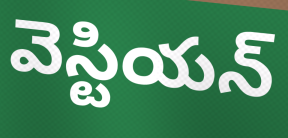
వెస్టియన్